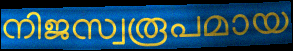
നിജസ്വരൂപമായ